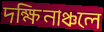
দক্ষিনাঞ্চলে